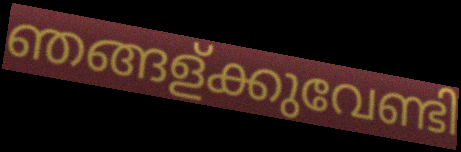
ഞങ്ങള്ക്കുവേണ്ടി